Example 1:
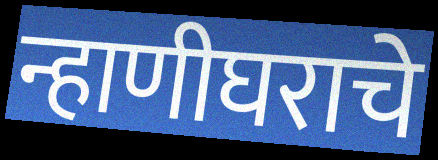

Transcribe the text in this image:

न्हाणीघराचे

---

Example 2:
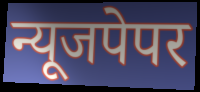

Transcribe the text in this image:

न्यूजपेपर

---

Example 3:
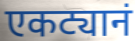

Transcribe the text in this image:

एकट्यानं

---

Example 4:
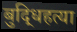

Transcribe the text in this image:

बुद्धिहत्या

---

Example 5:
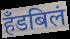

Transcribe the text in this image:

हँडबिलं